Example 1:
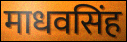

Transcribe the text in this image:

माधवसिंह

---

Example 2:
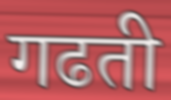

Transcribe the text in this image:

गढती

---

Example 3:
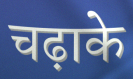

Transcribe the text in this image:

चढ़ाके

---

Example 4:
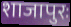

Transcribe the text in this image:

शाजापुरः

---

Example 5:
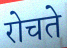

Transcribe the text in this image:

रोचते